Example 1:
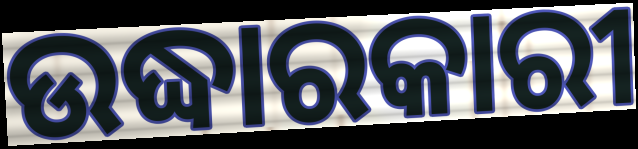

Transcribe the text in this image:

ଉଦ୍ଧାରକାରୀ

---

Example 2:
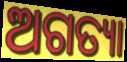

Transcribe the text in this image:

ଅଗତ୍ୟା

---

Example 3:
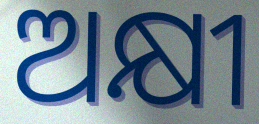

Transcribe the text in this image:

ଅକ୍ଷୀ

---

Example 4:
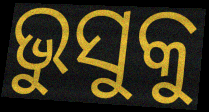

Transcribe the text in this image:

ଭୁସୁକୁ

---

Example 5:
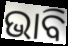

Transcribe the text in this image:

ଭାବି